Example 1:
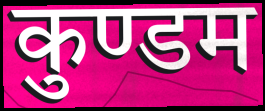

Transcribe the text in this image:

कुण्डम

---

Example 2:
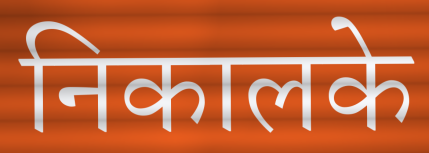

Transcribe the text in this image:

निकालके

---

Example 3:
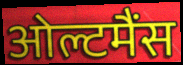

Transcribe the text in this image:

ओल्टमैंस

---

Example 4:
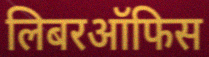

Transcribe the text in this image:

लिबरऑफिस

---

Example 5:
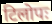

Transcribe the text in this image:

टिलोपः